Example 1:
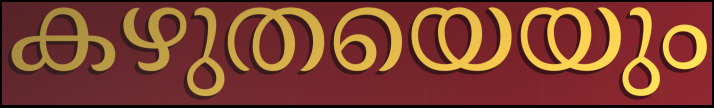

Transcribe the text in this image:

കഴുതയെയും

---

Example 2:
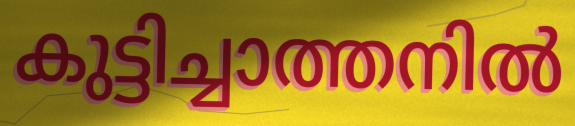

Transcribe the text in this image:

കുട്ടിച്ചാത്തനിൽ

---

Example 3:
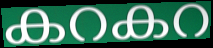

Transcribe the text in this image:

കറകറ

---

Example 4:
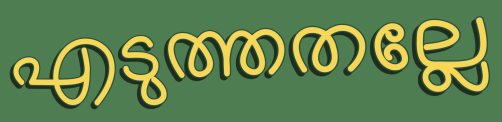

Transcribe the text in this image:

എടുത്തതല്ലേ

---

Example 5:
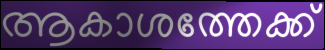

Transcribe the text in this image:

ആകാശത്തേക്ക്